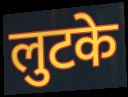
लुटके